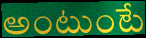
అంటుంటే